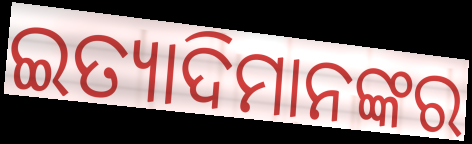
ଇତ୍ୟାଦିମାନଙ୍କର